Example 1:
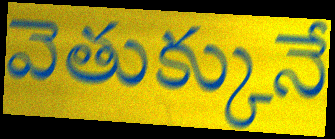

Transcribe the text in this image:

వెతుక్కునే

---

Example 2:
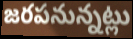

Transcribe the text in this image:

జరపనున్నట్లు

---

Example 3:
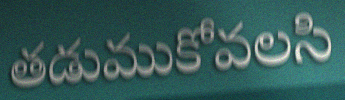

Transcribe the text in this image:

తడుముకోవలసి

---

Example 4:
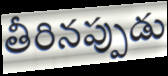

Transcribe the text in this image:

తీరినప్పుడు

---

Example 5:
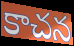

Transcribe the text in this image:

కాచన